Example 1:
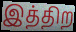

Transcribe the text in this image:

இத்திற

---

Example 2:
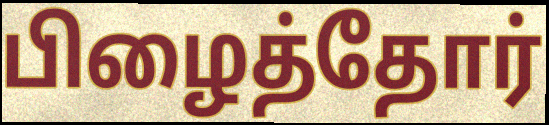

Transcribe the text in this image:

பிழைத்தோர்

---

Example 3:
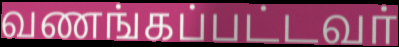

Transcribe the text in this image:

வணங்கப்பட்டவர்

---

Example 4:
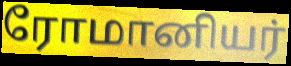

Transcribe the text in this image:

ரோமானியர்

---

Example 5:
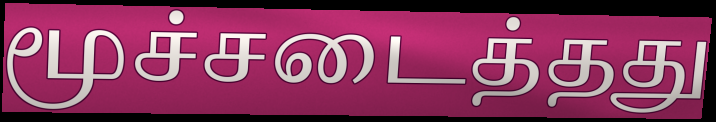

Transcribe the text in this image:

மூச்சடைத்தது